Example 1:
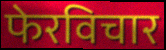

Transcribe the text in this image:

फेरविचार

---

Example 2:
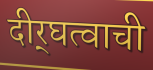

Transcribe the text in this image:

दीर्घत्वाची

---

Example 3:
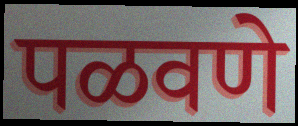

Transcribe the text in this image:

पळवणे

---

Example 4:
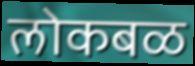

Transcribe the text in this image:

लोकबळ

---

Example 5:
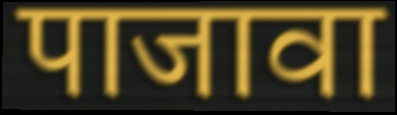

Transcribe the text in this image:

पाजावा